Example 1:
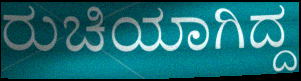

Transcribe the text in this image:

ರುಚಿಯಾಗಿದ್ದ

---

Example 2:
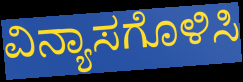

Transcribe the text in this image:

ವಿನ್ಯಾಸಗೊಳಿಸಿ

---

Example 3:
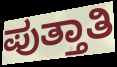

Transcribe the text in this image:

ಪುತ್ತಾತಿ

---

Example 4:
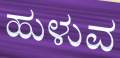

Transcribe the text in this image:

ಹುಳುವ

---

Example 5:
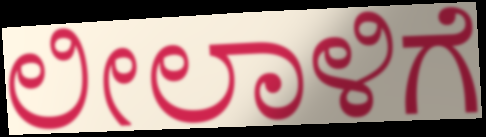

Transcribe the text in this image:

ಲೀಲಾಳಿಗೆ